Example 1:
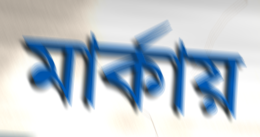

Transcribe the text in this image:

মার্কায়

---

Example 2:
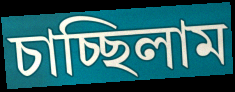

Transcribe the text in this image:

চাচ্ছিলাম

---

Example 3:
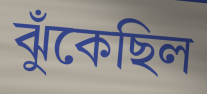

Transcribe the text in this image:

ঝুঁকেছিল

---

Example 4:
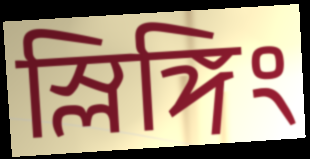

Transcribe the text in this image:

স্লিঙ্গিং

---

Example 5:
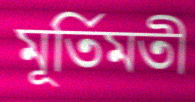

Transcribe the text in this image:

মূর্তিমতী